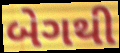
બેગથી